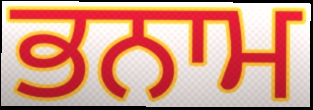
ਭਨਾਮ